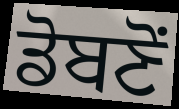
ਡੋਬਣੋਂ